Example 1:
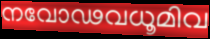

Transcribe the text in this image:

നവോഢവധൂമിവ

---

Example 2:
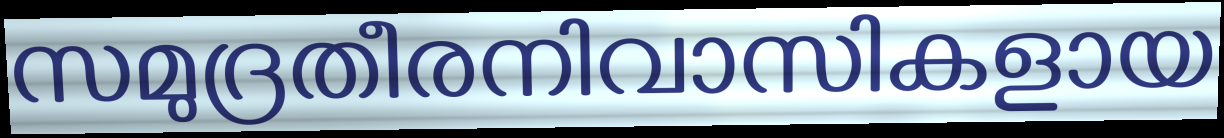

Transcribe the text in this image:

സമുദ്രതീരനിവാസികളായ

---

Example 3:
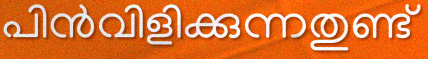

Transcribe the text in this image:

പിൻവിളിക്കുന്നതുണ്ട്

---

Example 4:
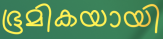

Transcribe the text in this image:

ഭൂമികയായി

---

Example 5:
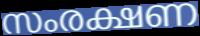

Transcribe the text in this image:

സംരക്ഷണ